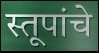
स्तूपांचे